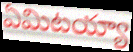
ఏమిటయ్యా